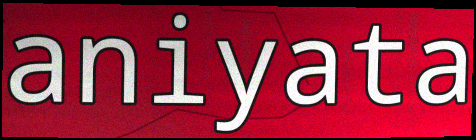
aniyata